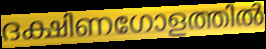
ദക്ഷിണഗോളത്തിൽ